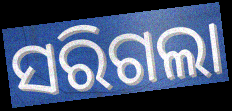
ସରିଗଲା